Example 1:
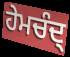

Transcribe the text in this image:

ਹੇਮਚੰਦ੍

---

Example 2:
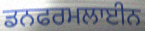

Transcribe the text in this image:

ਡਨਫਰਮਲਾਈਨ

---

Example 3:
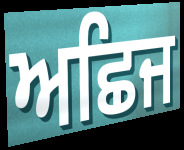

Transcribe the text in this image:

ਅਛਿਜ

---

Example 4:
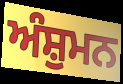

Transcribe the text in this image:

ਅੰਸ਼ੁਮਨ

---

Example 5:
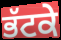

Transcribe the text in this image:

ਭੱਟਕੇ